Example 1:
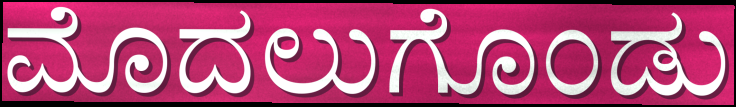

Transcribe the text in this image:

ಮೊದಲುಗೊಂಡು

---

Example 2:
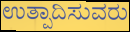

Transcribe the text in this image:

ಉತ್ಪಾದಿಸುವರು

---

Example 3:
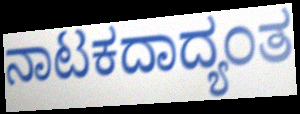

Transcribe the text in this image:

ನಾಟಕದಾದ್ಯಂತ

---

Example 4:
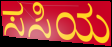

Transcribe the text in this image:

ಸಸಿಯ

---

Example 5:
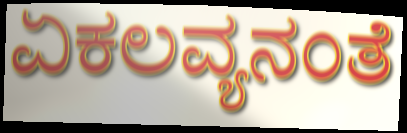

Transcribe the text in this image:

ಏಕಲವ್ಯನಂತೆ